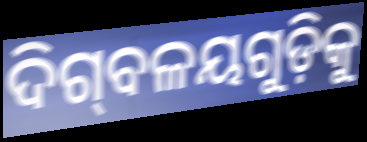
ଦିଗ୍‌ବଳୟଗୁଡ଼ିକୁ